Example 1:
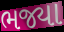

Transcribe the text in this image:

ભજ્યા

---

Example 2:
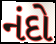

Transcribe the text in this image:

નંદો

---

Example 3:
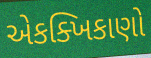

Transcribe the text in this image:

એકક્ખિકાણો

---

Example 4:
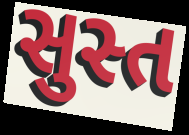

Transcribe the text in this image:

સુસ્ત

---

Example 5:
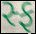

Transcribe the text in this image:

સ્ફ